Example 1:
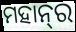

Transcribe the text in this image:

ମହାନ୍‌ର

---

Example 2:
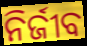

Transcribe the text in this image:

ନିର୍ଜୀବ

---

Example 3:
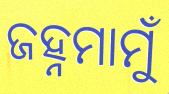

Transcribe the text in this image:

ଜହ୍ନମାମୁଁ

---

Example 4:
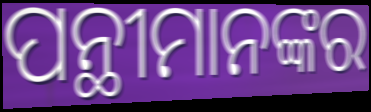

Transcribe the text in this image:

ପନ୍ଥୀମାନଙ୍କର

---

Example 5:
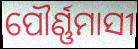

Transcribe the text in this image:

ପୌର୍ଣ୍ଣମାସୀ